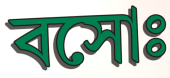
বসোঃ